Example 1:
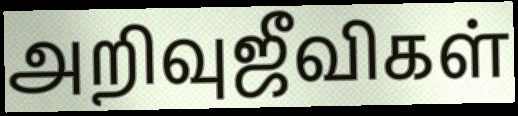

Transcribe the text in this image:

அறிவுஜீவிகள்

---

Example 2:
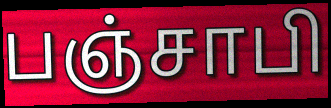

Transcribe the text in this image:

பஞ்சாபி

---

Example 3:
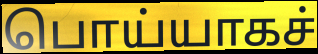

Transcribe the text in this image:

பொய்யாகச்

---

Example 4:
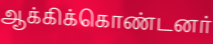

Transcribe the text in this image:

ஆக்கிக்கொண்டனர்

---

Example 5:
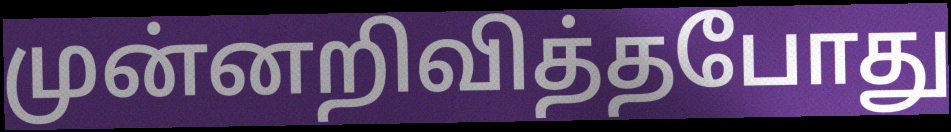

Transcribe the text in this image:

முன்னறிவித்தபோது